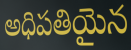
అధిపతియైన